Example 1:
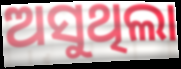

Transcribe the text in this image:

ଅସୁଥିଲା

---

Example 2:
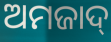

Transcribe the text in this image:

ଅମଜାଦ୍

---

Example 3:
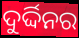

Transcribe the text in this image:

ଦୁର୍ଦ୍ଦିନର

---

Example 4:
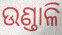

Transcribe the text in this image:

ଉଣ୍ଡାଳି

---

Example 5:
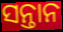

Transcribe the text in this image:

ସନ୍ତାନ